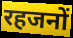
रहजनों